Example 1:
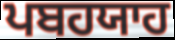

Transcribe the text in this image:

ਪਬਹਯਾਹ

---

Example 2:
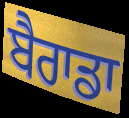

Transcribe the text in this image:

ਬੈਰਾਡਾ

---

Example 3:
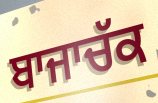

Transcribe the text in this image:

ਬਾਜਾਚੱਕ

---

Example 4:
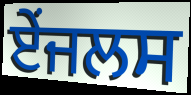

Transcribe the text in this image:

ਏਂਜਲਸ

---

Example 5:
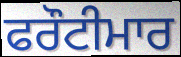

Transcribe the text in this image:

ਫਰੌਟੀਮਾਰ